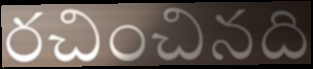
రచించినది